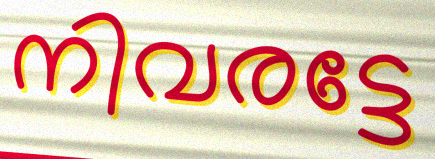
നിവരട്ടേ